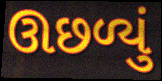
ઊછળ્યું